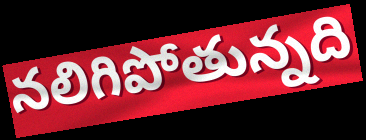
నలిగిపోతున్నది